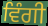
ਵਿੰਗੀ